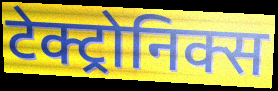
टेक्ट्रोनिक्स